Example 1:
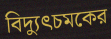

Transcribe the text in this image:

বিদ্যুৎচমকের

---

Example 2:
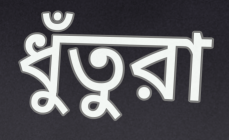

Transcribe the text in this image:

ধুঁতুরা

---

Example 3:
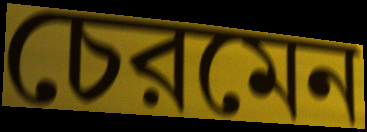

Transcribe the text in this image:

চেরমেন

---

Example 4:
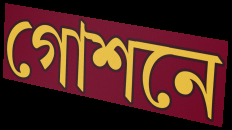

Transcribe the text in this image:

গোশনে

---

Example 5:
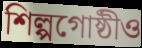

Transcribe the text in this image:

শিল্পগোষ্ঠীও